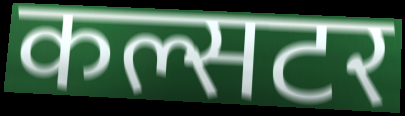
कल्सटर